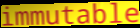
immutable